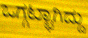
ಒಗ್ಗಟ್ಟಾಗಿದ್ದು